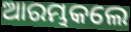
ଆରମ୍ଭକଲେ